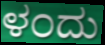
ಳಂದು